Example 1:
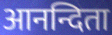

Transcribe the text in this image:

आनन्दिता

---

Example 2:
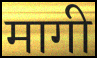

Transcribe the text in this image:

मागी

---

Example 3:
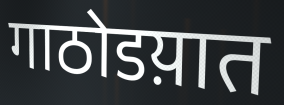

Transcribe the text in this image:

गाठोडय़ात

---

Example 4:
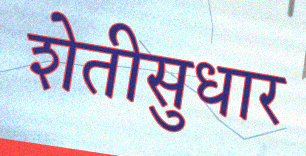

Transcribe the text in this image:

शेतीसुधार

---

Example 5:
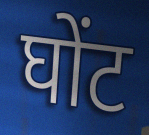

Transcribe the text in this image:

घोंट